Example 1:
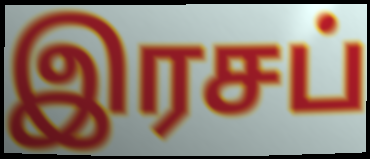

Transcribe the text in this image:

இரசப்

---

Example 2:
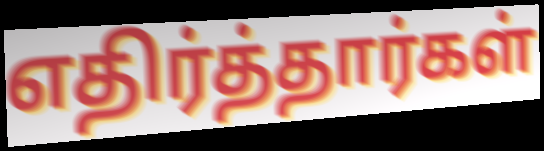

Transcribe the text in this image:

எதிர்த்தார்கள்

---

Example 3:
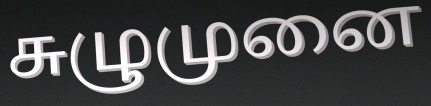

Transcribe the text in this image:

சுழுமுனை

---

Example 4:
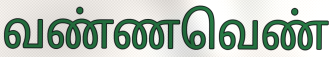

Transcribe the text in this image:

வண்ணவெண்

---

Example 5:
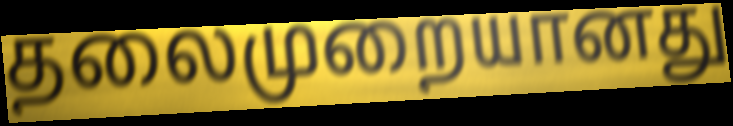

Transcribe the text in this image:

தலைமுறையானது